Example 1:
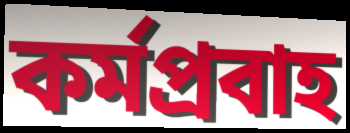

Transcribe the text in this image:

কর্মপ্রবাহ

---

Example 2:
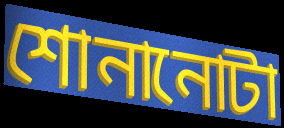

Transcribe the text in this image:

শোনানোটা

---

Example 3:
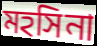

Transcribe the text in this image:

মহসিনা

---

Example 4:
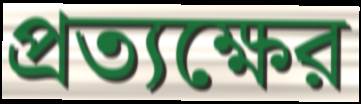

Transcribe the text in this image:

প্রত্যক্ষের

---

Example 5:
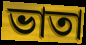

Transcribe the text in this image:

ভাতা